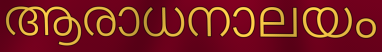
ആരാധനാലയം